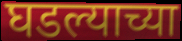
घडल्याच्या